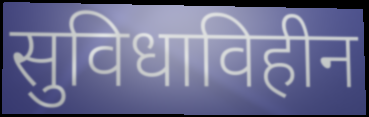
सुविधाविहीन